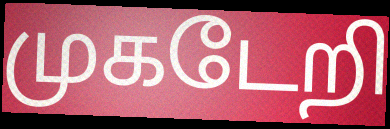
முகடேறி